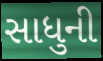
સાધુની